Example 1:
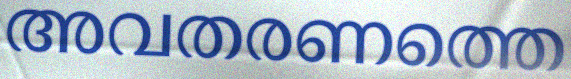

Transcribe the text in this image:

അവതരണത്തെ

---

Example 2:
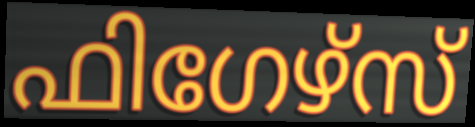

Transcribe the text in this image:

ഫിഗേഴ്സ്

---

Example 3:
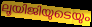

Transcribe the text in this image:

ലൂയിജിയുടെയും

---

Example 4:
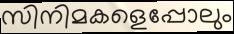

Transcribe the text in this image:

സിനിമകളെപ്പോലും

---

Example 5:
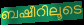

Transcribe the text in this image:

ബഷീറിലൂടെ